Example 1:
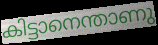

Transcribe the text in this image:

കിട്ടാനെന്താണു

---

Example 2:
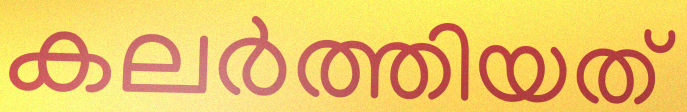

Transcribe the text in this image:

കലർത്തിയത്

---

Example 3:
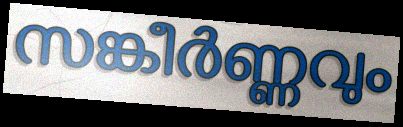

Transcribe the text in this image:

സങ്കീർണ്ണവും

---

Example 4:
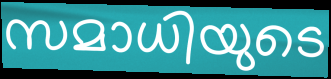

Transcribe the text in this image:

സമാധിയുടെ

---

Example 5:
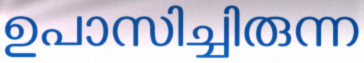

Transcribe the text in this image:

ഉപാസിച്ചിരുന്ന